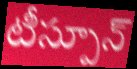
టీస్పూన్